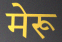
मेरू